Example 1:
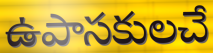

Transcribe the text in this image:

ఉపాసకులచే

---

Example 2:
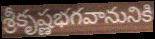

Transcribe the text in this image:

శ్రీకృష్ణభగవానునికి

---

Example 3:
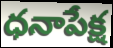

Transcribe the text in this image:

ధనాపేక్ష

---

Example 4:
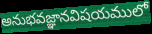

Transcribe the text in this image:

అనుభవజ్ఞానవిషయములో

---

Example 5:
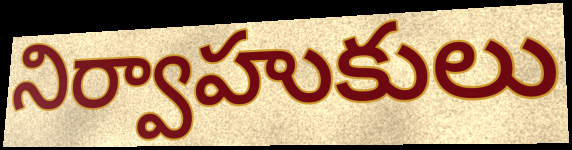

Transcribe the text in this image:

నిర్వాహుకులు